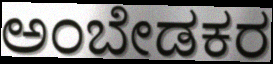
ಅಂಬೇಡಕರ